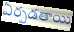
ఏర్పడతాయి